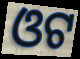
ଓଟ